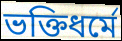
ভক্তিধর্মে